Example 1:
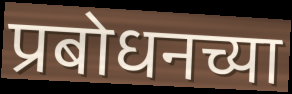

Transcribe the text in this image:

प्रबोधनच्या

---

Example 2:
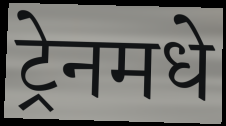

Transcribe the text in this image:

ट्रेनमधे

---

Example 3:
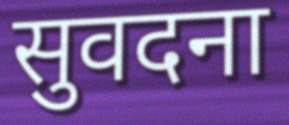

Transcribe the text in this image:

सुवदना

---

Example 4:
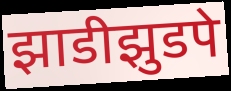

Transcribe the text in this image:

झाडीझुडपे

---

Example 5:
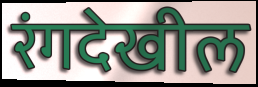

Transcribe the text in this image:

रंगदेखील